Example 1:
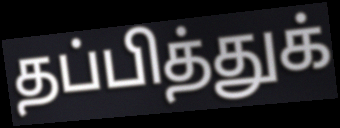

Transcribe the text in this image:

தப்பித்துக்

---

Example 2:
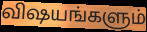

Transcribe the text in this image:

விஷயங்களும்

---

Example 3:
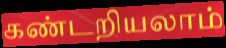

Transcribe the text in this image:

கண்டறியலாம்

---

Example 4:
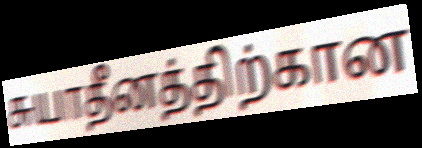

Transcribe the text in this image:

சுயாதீனத்திற்கான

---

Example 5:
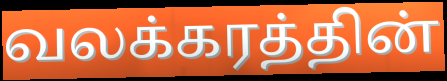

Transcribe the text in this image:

வலக்கரத்தின்